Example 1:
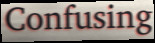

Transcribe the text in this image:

Confusing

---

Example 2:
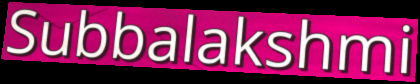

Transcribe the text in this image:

Subbalakshmi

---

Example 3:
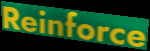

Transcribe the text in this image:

Reinforce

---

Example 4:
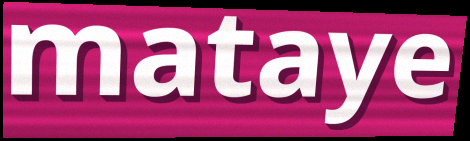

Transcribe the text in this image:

mataye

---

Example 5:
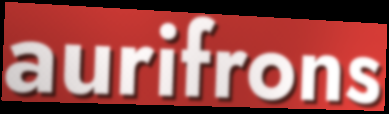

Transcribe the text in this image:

aurifrons